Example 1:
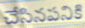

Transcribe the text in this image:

చేసినపనికి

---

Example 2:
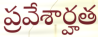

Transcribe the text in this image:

ప్రవేశార్హత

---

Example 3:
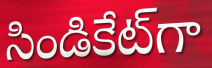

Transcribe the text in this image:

సిండికేట్‌గా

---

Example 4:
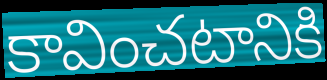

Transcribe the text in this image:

కావించటానికి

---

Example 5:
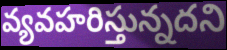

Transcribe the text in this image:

వ్యవహరిస్తున్నదని